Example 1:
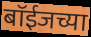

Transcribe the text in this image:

बॉईजच्या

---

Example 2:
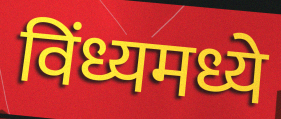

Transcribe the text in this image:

विंध्यमध्ये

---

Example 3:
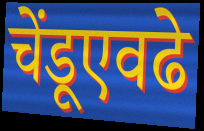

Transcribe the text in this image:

चेंडूएवढे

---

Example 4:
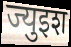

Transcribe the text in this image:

ज्युइश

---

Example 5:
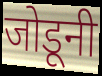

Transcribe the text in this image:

जोडूनी